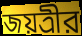
জয়ত্রীর